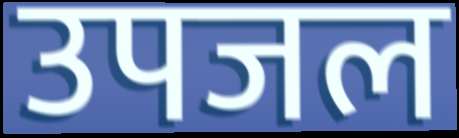
उपजल